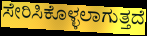
ಸೇರಿಸಿಕೊಳ್ಳಲಾಗುತ್ತದೆ